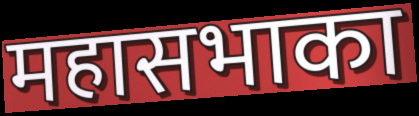
महासभाका